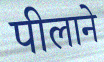
पीलाने